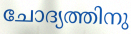
ചോദ്യത്തിനു